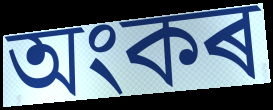
অংকৰ